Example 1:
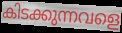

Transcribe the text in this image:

കിടക്കുന്നവളെ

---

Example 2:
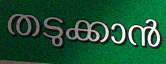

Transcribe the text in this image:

തടുക്കാൻ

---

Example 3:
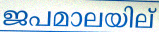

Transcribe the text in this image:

ജപമാലയില്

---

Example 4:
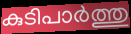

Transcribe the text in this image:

കുടിപാർത്തു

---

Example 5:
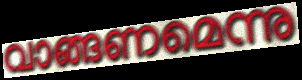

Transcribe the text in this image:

വാങ്ങണമെന്നു